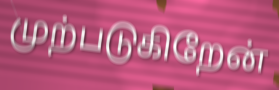
முற்படுகிறேன்